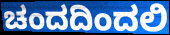
ಚಂದದಿಂದಲಿ